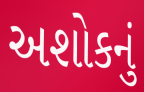
અશોકનું